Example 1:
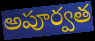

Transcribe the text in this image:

అపూర్వత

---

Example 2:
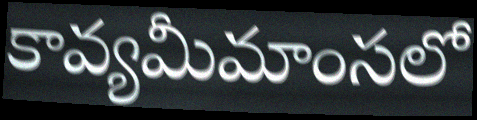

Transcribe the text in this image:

కావ్యమీమాంసలో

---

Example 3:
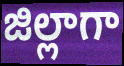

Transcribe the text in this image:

జిల్లాగా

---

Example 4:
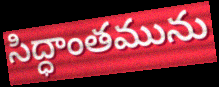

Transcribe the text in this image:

సిద్ధాంతమును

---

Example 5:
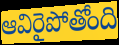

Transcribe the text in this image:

ఆవిరైపోతోంది